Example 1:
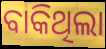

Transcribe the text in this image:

ବାକିଥିଲା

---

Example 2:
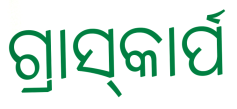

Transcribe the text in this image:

ଗ୍ରାସ୍‌କାର୍ପ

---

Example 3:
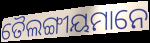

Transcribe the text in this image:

ତୈଲଙ୍ଗୀୟମାନେ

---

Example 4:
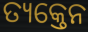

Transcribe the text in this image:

ତ୍ୟକ୍ତେନ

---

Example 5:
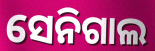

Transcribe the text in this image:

ସେନିଗାଲ